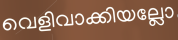
വെളിവാക്കിയല്ലോ